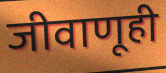
जीवाणूही